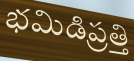
భమిడిప్రత్తి